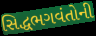
સિદ્ધભગવંતોની